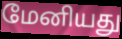
மேனியது